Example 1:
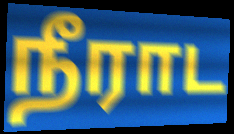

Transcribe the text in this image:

நீராட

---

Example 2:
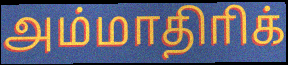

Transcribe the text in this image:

அம்மாதிரிக்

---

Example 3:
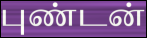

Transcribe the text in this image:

புண்டன்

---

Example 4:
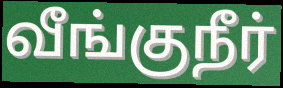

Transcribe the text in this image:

வீங்குநீர்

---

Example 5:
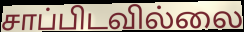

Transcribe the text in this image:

சாப்பிடவில்லை